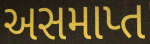
અસમાપ્ત